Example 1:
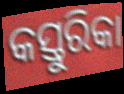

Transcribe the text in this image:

କସ୍ତୁରିକା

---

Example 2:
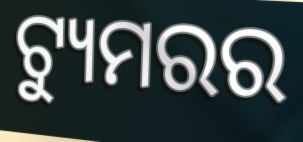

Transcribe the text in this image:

ଟ୍ୟୁମରର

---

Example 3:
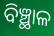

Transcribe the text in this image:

ବିଞ୍ଛାଳ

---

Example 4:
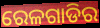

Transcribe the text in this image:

ରେଳଗାଡିର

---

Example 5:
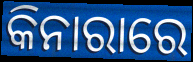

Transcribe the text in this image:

କିନାରାରେ